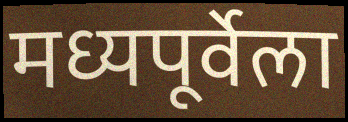
मध्यपूर्वेला